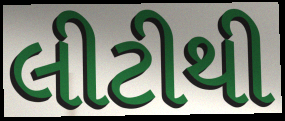
લીટીથી